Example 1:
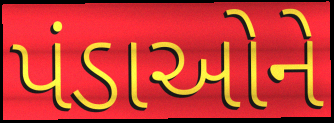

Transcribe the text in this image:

પંડાઓને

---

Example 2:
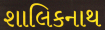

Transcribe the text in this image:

શાલિકનાથ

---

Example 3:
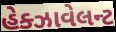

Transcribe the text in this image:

હેક્ઝાવેલન્ટ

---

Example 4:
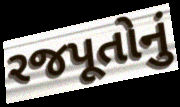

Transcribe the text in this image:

રજપૂતોનું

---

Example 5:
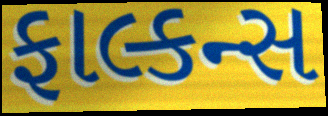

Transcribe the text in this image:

ફાલ્કન્સ